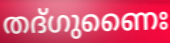
തദ്ഗുണൈഃ